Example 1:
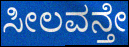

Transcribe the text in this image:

ಸೀಲವನ್ತೇ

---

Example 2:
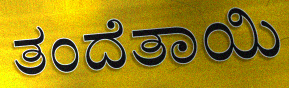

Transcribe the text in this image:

ತಂದೆತಾಯಿ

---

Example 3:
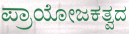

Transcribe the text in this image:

ಪ್ರಾಯೋಜಕತ್ವದ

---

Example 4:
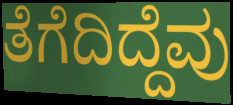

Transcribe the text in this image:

ತೆಗೆದಿದ್ದೆವು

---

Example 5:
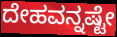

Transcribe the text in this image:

ದೇಹವನ್ನಷ್ಟೇ